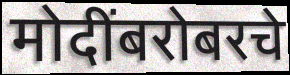
मोदींबरोबरचे